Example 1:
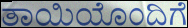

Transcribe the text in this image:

ತಾಯಿಯೊಂದಿಗೆ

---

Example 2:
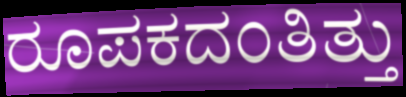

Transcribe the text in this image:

ರೂಪಕದಂತಿತ್ತು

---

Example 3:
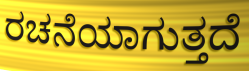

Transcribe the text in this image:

ರಚನೆಯಾಗುತ್ತದೆ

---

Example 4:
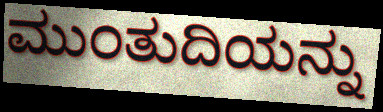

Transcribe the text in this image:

ಮುಂತುದಿಯನ್ನು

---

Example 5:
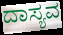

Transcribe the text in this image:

ದಾಸ್ಯವ